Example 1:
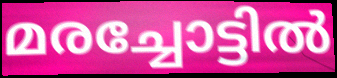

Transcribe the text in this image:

മരച്ചോട്ടിൽ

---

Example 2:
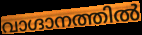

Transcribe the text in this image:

വാഗ്ദാനത്തിൽ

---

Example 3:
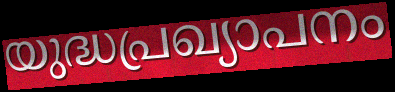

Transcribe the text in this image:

യുദ്ധപ്രഖ്യാപനം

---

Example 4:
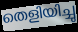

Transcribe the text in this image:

തെളിയിച്ചു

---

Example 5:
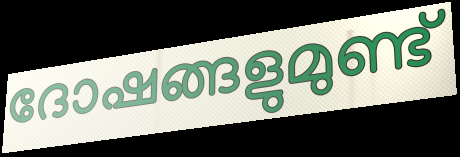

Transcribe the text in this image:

ദോഷങ്ങളുമുണ്ട്